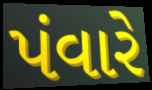
પંવારે